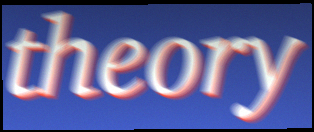
theory